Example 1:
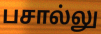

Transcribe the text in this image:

பசால்லு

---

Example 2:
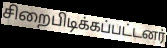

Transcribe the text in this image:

சிறைபிடிக்கப்பட்டனர்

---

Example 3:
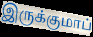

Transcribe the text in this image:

இருக்குமாப்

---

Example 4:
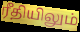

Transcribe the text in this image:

ரீதியிலும்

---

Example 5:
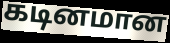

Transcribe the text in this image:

கடினமான